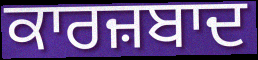
ਕਾਰਜ਼ਬਾਦ